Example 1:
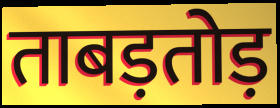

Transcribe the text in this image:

ताबड़तोड़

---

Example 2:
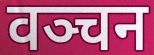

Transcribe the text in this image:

वञ्चन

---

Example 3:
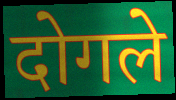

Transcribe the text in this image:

दोगले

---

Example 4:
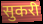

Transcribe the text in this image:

सुकरी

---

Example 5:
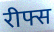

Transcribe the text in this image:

रीफ्स